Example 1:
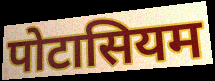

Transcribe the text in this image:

पोटासियम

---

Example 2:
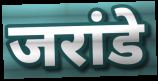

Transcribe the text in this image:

जरांडे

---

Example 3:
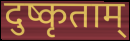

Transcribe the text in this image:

दुष्कृताम्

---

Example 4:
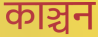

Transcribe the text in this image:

काञ्चन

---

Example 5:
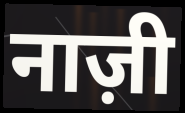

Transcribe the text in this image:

नाज़ी